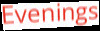
Evenings